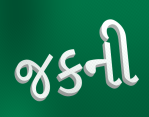
જકની